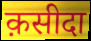
क़सीदा